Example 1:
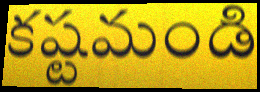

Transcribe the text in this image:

కష్టమండి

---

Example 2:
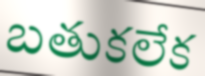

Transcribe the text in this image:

బతుకలేక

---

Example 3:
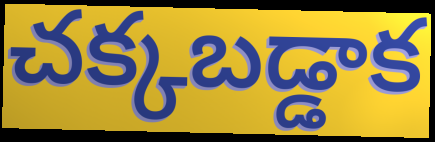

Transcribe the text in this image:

చక్కబడ్డాక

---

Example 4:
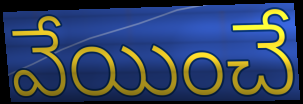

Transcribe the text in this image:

వేయించే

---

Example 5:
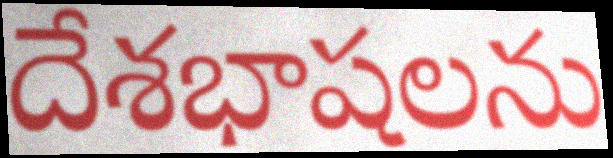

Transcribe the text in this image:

దేశభాషలను